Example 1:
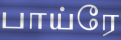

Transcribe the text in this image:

பாய்ரே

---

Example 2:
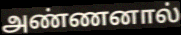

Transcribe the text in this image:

அண்ணனால்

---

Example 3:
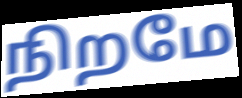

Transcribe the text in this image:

நிறமே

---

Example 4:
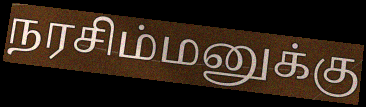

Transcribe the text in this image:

நரசிம்மனுக்கு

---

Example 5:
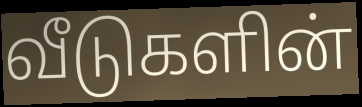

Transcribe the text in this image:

வீடுகளின்